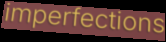
imperfections